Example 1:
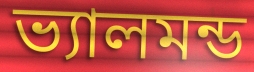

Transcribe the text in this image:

ভ্যালমন্ড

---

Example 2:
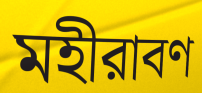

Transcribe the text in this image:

মহীরাবণ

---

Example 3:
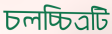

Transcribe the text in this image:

চলচ্চিত্রটি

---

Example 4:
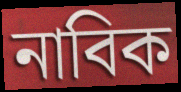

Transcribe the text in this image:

নাবিক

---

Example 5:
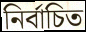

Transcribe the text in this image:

নির্বাচিত